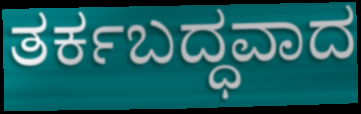
ತರ್ಕಬದ್ಧವಾದ